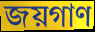
জয়গাণ